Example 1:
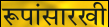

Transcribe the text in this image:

रूपांसारखी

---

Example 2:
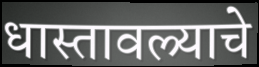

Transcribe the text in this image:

धास्तावल्याचे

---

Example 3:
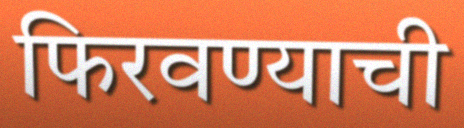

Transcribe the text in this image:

फिरवण्याची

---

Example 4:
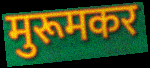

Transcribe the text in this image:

मुरूमकर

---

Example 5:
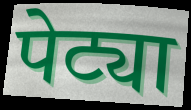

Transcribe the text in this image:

पेट्या